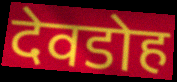
देवडोह